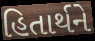
હિતાર્થને